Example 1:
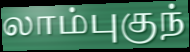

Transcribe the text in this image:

லாம்புகுந்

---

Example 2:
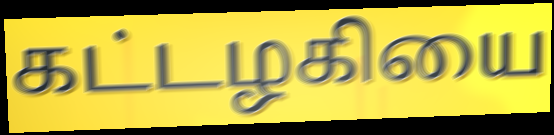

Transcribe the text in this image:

கட்டழகியை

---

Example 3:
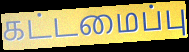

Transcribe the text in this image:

கட்டமைப்பு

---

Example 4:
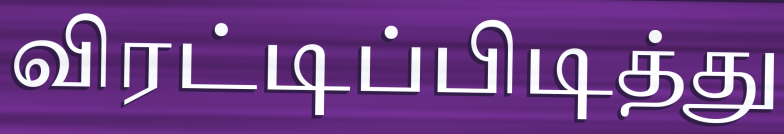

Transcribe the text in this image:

விரட்டிப்பிடித்து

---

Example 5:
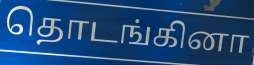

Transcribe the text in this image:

தொடங்கினா